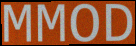
MMOD